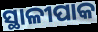
ସ୍ଥାଳୀପାକ